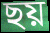
ছয়